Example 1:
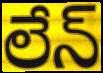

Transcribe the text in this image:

లేన్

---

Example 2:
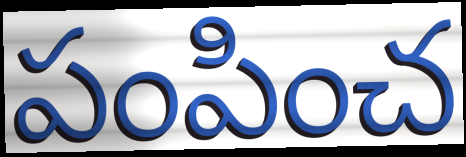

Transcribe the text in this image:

పంపించ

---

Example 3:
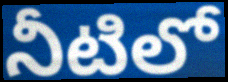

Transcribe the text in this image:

నీటిలో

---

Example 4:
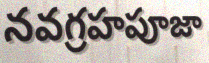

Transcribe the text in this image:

నవగ్రహపూజా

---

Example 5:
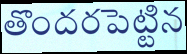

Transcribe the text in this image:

తొందరపెట్టిన